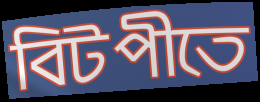
বিটপীতে